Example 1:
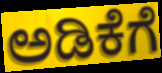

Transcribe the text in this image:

ಅಡಿಕೆಗೆ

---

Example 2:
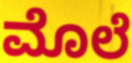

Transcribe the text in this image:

ಮೊಲೆ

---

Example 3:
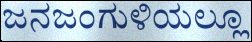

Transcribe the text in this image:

ಜನಜಂಗುಳಿಯಲ್ಲೂ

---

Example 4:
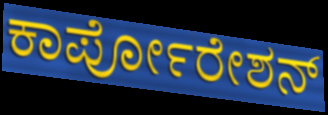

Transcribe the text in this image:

ಕಾರ್ಪೋರೇಶನ್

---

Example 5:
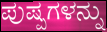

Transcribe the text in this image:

ಪುಷ್ಪಗಳನ್ನು